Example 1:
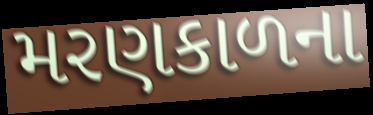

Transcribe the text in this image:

મરણકાળના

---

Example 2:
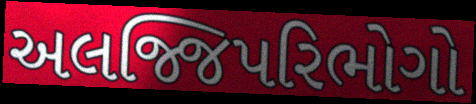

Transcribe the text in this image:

અલજ્જિપરિભોગો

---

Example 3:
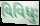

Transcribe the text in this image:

વિવિધુઃ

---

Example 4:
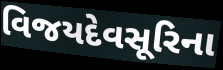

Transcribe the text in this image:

વિજયદેવસૂરિના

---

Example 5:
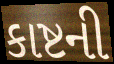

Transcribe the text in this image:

કાષ્ટની